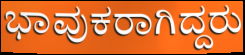
ಭಾವುಕರಾಗಿದ್ದರು